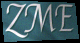
ZME